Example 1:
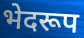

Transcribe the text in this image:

भेदरूप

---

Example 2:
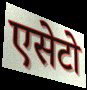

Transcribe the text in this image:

एसेटो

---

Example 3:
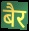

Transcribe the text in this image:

बैर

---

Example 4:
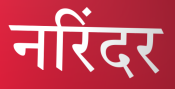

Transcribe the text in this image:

नरिंदर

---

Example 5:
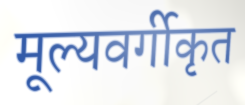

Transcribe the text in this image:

मूल्यवर्गीकृत